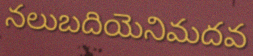
నలుబదియెనిమదవ